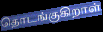
தொடங்குகிறாள்